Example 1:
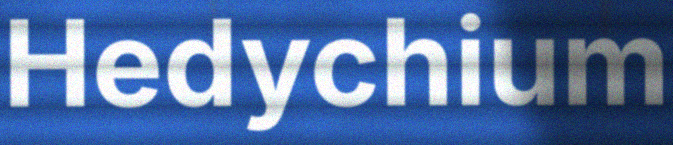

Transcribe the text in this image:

Hedychium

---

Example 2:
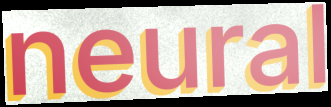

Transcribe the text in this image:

neural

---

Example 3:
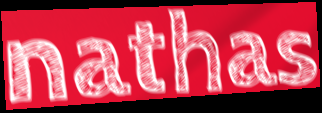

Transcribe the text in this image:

nathas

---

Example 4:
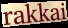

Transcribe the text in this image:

rakkai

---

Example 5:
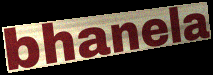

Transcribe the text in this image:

bhanela